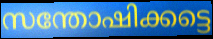
സന്തോഷിക്കട്ടെ